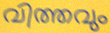
വിത്തവും